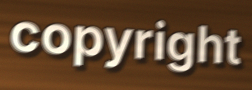
copyright